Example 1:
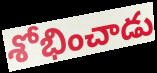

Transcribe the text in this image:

శోభించాడు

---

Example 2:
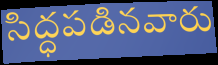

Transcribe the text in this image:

సిద్ధపడినవారు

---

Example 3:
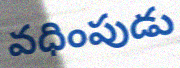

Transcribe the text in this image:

వధింపుడు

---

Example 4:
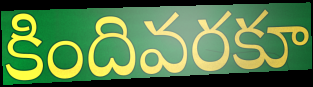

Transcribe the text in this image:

కిందివరకూ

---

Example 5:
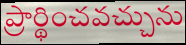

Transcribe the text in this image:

ప్రార్థించవచ్చును